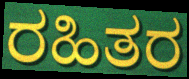
ರಹಿತರ